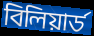
বিলিয়ার্ড